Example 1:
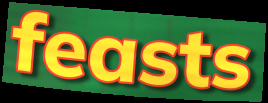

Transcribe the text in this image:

feasts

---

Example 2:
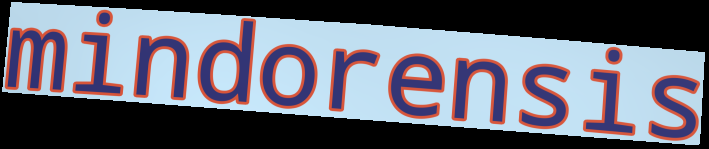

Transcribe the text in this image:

mindorensis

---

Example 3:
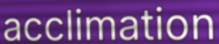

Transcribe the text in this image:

acclimation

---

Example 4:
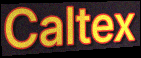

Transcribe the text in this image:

Caltex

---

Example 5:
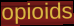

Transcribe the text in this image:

opioids